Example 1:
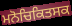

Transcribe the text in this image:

ਮਨੋਚਿਕਿਤਸਕ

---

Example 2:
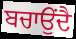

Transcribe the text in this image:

ਬਚਾਉਂਦੈ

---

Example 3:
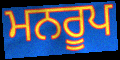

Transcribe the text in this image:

ਮਨਰੂਪ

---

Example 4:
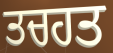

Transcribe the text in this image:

ਤਚਹਤ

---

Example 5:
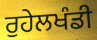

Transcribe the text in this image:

ਰੁਹੇਲਖੰਡੀ